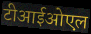
टीआईओएल